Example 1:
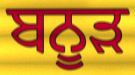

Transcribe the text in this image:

ਬਨੂੜ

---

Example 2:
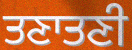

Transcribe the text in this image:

ਤਣਾਤਣੀ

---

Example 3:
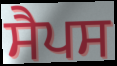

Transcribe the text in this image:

ਸੈਪਸ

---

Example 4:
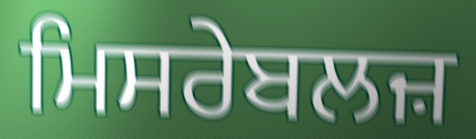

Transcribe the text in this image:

ਮਿਸਰੇਬਲਜ਼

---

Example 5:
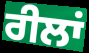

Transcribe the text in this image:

ਰੀਲਾਂ